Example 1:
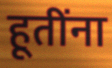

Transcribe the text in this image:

हूतींना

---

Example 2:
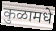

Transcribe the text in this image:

कुळामधे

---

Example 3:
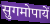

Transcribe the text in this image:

सुगमोपायें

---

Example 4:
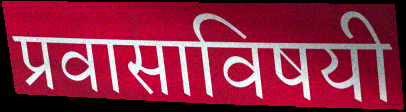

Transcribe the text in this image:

प्रवासाविषयी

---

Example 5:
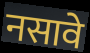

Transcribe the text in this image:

नसावे